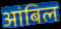
आंबिल